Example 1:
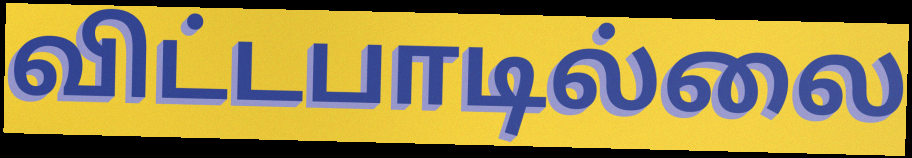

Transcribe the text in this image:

விட்டபாடில்லை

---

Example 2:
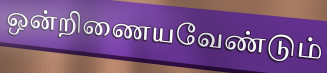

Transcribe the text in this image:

ஒன்றிணையவேண்டும்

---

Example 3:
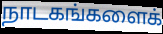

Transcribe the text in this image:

நாடகங்களைக்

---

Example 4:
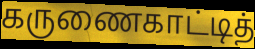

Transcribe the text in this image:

கருணைகாட்டித்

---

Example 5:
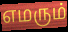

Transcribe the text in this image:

எமரும்